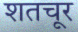
शतचूर